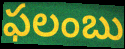
ఫలంబు